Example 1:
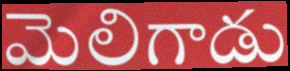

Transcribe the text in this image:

మెలిగాడు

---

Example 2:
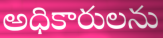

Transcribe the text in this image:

అధికారులను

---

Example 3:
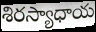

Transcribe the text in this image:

శిరస్యాధాయ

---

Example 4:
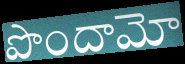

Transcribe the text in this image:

పొందామో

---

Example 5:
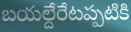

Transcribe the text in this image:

బయల్దేరేటప్పటికి